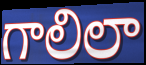
గాలిలా